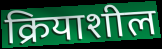
क्रियाशील